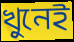
খুনেই